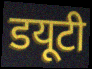
डयूटी